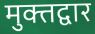
मुक्तद्वार